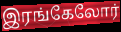
இரங்கேலோர்